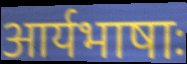
आर्यभाषाः